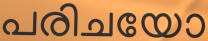
പരിചയോ